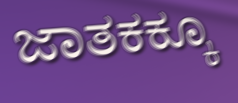
ಜಾತಕಕ್ಕೂ